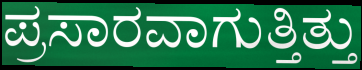
ಪ್ರಸಾರವಾಗುತ್ತಿತ್ತು